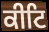
ਕੀਟਿ